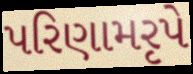
પરિણામરૃપે